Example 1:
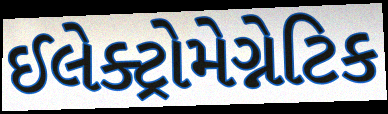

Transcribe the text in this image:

ઈલેક્ટ્રોમેગ્નેટિક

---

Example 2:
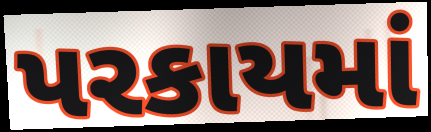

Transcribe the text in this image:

પરકાયમાં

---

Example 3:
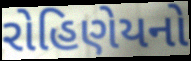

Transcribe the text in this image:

રોહિણેયનો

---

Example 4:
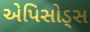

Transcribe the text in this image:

એપિસોડ્સ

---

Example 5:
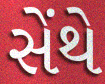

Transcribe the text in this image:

સેંથે